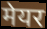
मेयर